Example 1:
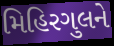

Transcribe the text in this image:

મિહિરગુલને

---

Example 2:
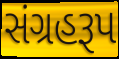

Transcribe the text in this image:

સંગ્રહરૂપ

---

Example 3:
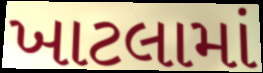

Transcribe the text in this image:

ખાટલામાં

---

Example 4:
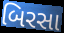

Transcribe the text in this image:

બિરસા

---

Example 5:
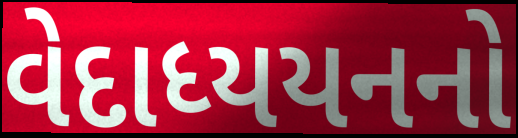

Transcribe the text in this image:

વેદાધ્યયનનો